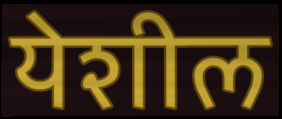
येशील